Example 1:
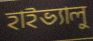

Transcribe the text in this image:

হাইভ্যালু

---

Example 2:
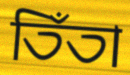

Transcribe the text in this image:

তিঁতা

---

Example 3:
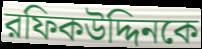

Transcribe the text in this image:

রফিকউদ্দিনকে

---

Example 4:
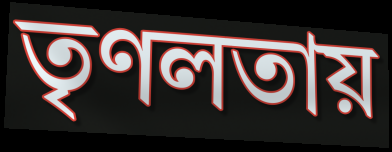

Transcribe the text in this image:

তৃণলতায়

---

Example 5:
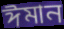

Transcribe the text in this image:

ঈমান